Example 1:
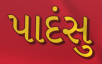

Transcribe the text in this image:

પાદંસુ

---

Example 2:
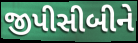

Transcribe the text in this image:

જીપીસીબીને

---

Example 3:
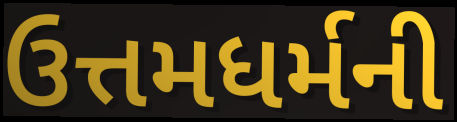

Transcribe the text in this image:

ઉત્તમધર્મની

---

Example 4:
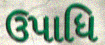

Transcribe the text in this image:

ઉપાધિ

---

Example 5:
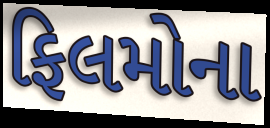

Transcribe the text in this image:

ફિલમોના